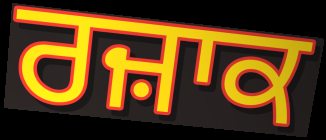
ਰਜ਼ਾਕ